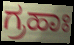
ಗ್ರಹಾಃ